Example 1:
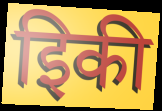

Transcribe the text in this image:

इिकी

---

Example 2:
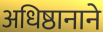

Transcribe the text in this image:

अधिष्ठानाने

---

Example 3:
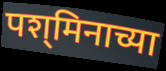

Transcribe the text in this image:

पश्मिनाच्या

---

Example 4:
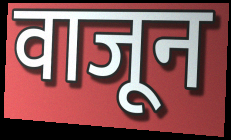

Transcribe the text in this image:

वाजून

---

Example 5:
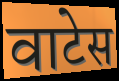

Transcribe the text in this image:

वाटेस